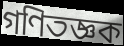
গণিতজ্ঞক